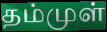
தம்முள்